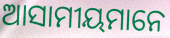
ଆସାମୀୟମାନେ